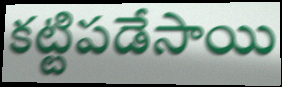
కట్టిపడేసాయి